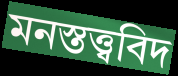
মনস্তত্ত্ববিদ